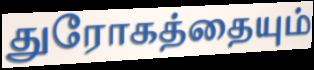
துரோகத்தையும்